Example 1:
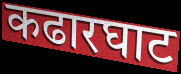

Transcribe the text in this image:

कढारघाट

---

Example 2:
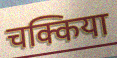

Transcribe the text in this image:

चक्किया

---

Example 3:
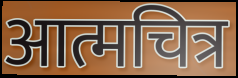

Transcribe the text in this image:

आत्मचित्र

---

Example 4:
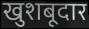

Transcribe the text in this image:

खुशबूदार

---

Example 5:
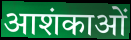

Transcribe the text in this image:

आशंकाओं